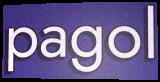
pagol